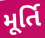
મૂર્તિ